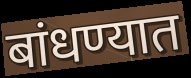
बांधण्‍यात